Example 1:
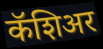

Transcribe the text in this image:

कॅशिअर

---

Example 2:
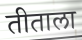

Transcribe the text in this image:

तीताला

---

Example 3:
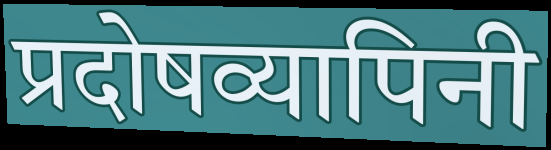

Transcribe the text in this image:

प्रदोषव्यापिनी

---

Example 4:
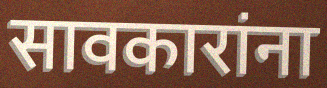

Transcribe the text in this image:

सावकारांना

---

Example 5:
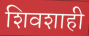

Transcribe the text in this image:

शिवशाही